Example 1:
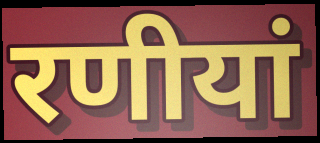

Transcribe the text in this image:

रणीयां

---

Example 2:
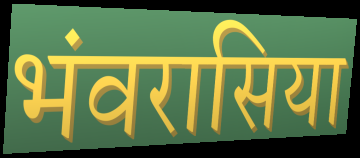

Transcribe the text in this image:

भंवरासिया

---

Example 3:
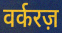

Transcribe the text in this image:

वर्करज़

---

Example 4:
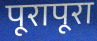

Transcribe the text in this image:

पूरापूरा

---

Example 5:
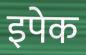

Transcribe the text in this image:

इपेक